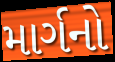
માર્ગનો